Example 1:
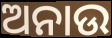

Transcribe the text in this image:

ଅନାଉ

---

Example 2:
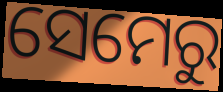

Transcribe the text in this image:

ସେମେରୁ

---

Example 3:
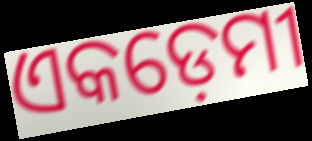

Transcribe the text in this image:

ଏକଡ଼େମୀ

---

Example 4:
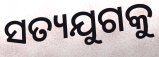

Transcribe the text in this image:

ସତ୍ୟଯୁଗକୁ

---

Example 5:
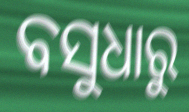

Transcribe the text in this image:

ବସୁଧାରୁ